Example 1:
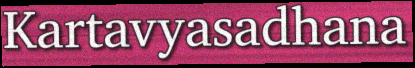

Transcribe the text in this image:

Kartavyasadhana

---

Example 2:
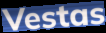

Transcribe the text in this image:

Vestas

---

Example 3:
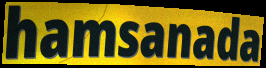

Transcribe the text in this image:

hamsanada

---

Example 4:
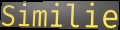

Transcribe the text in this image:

Similie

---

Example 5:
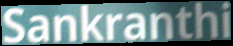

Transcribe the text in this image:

Sankranthi